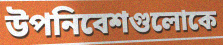
উপনিবেশগুলোকে